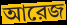
আরেজ